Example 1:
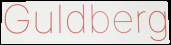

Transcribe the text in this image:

Guldberg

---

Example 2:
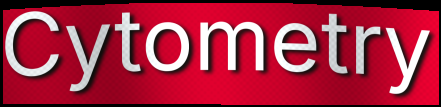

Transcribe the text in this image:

Cytometry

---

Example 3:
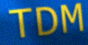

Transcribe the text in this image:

TDM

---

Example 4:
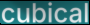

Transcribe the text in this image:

cubical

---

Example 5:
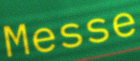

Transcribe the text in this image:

Messe